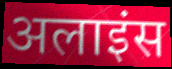
अलाइंस